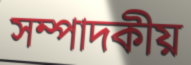
সম্পাদকীয়